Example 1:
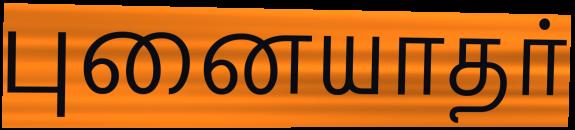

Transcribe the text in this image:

புனையாதர்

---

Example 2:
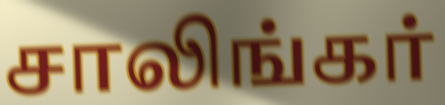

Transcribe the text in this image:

சாலிங்கர்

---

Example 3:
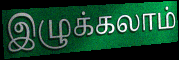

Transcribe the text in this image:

இழுக்கலாம்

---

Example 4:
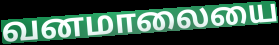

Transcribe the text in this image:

வனமாலையை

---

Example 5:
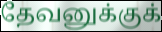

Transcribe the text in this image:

தேவனுக்குக்